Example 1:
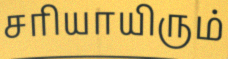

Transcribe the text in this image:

சரியாயிரும்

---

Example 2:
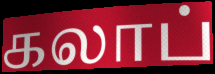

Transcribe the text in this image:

கலாப்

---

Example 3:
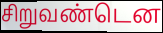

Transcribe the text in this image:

சிறுவண்டென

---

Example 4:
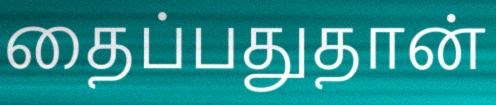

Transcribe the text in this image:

தைப்பதுதான்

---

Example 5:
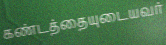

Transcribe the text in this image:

கண்டத்தையுடையவர்